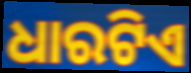
ଧାରଟିଏ